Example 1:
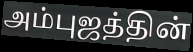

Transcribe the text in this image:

அம்புஜத்தின்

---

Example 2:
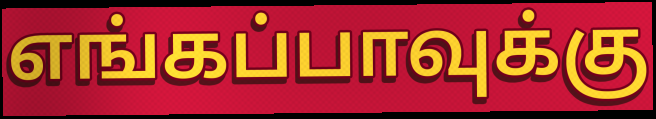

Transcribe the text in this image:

எங்கப்பாவுக்கு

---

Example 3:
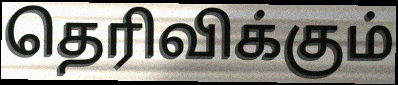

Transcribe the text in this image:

தெரிவிக்கும்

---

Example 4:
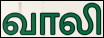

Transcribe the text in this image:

வாலி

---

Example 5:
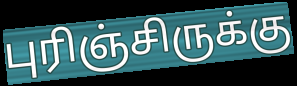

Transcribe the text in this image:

புரிஞ்சிருக்கு